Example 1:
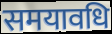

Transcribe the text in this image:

समयावधि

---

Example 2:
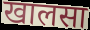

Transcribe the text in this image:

खालसा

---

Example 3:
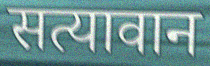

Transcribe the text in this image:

सत्यावान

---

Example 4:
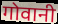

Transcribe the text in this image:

गोवानी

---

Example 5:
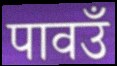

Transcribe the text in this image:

पावउँ